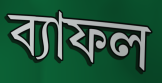
ব্যাফল